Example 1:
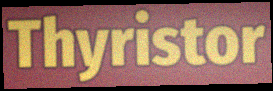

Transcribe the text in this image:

Thyristor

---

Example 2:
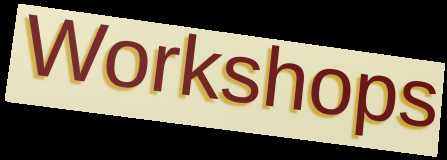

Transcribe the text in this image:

Workshops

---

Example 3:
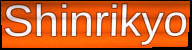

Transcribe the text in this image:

Shinrikyo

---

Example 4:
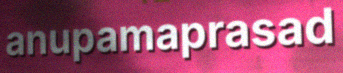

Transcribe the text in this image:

anupamaprasad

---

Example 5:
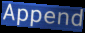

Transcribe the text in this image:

Append